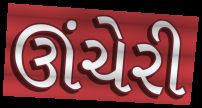
ઊંચેરી